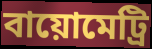
বায়োমেট্রি